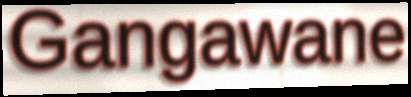
Gangawane